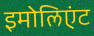
इमोलिएंट